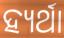
ହ୍ୟର୍ଥା